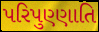
પરિપુણ્ણાતિ